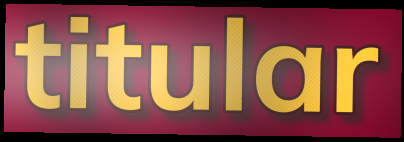
titular